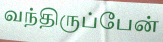
வந்திருப்பேன்